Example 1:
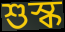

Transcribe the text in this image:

শুস্ক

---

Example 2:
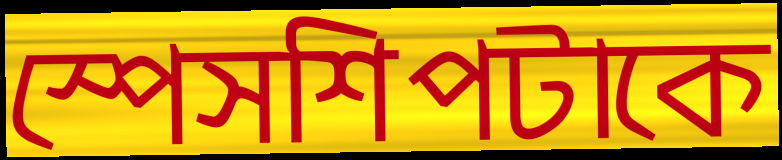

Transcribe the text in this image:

স্পেসশিপটাকে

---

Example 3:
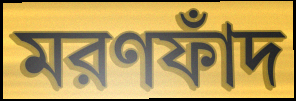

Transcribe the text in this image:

মরণফাঁদ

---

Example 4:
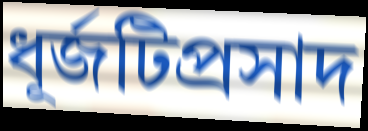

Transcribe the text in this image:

ধূর্জটিপ্রসাদ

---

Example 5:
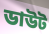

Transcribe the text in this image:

ডাউট